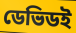
ডেভিডই